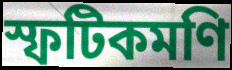
স্ফটিকমণি